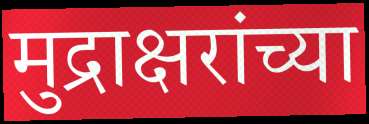
मुद्राक्षरांच्या